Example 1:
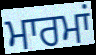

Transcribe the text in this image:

ਮਾਰਮਾਂ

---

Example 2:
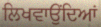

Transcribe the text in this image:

ਲਿਖਵਾਉਂਦਿਆਂ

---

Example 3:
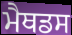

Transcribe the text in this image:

ਮੈਥਡਸ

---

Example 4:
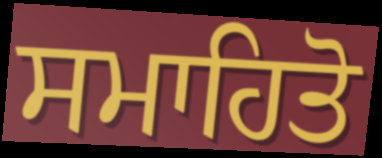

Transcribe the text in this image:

ਸਮਾਹਿਤੋ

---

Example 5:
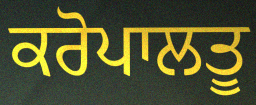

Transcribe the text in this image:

ਕਰੋਪਾਲਤੂ